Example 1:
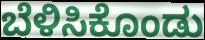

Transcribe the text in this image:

ಬೆಳಿಸಿಕೊಂಡು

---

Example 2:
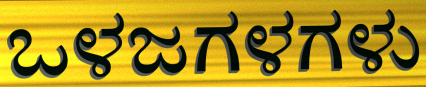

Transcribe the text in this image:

ಒಳಜಗಳಗಳು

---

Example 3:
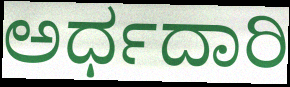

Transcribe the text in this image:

ಅರ್ಧದಾರಿ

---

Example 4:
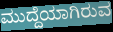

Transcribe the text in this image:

ಮುದ್ದೆಯಾಗಿರುವ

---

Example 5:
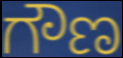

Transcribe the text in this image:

ಗೌಣ